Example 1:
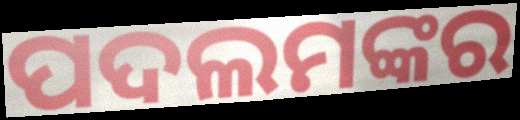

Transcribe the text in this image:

ପଦଲମଙ୍କର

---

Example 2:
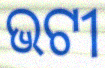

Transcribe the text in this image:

ଭଟୀ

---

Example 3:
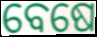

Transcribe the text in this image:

ବେଷେ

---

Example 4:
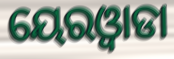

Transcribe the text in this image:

ୟେରଓ୍ୱାଡା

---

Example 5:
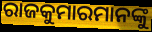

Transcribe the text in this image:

ରାଜକୁମାରମାନଙ୍କୁ